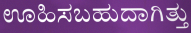
ಊಹಿಸಬಹುದಾಗಿತ್ತು